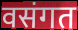
वसंगत